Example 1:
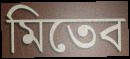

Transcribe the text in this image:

মিতেব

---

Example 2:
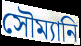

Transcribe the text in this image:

সৌম্যানি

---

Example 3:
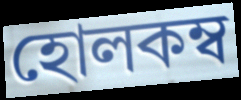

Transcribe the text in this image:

হোলকম্ব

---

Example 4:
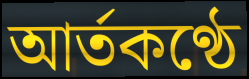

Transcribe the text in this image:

আর্তকণ্ঠে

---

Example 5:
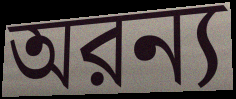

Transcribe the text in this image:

অরন্য